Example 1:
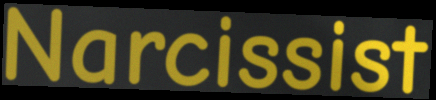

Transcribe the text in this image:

Narcissist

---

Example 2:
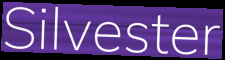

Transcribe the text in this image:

Silvester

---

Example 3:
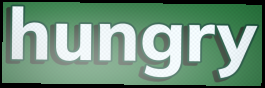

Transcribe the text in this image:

hungry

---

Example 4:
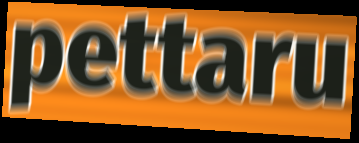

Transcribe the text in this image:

pettaru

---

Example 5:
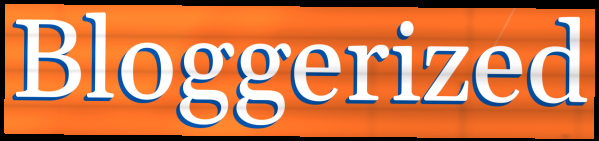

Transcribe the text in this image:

Bloggerized